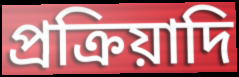
প্রক্রিয়াদি